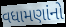
વધામણાંનો